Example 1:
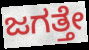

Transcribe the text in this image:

ಜಗತ್ತೇ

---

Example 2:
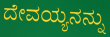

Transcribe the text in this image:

ದೇವಯ್ಯನನ್ನು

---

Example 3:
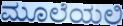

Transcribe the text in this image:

ಮೂಲೆಯಲಿ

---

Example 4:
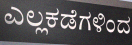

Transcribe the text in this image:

ಎಲ್ಲಕಡೆಗಳಿಂದ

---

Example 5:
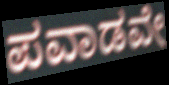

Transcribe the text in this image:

ಪವಾಡವೇ